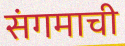
संगमाची